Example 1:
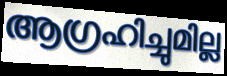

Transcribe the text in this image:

ആഗ്രഹിച്ചുമില്ല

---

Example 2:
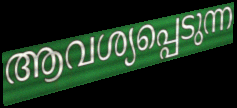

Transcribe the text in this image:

ആവശ്യപ്പെടുന്ന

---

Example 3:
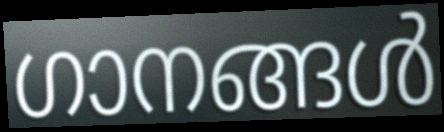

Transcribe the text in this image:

ഗാനങ്ങൾ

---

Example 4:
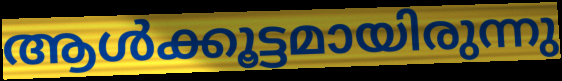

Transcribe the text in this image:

ആൾക്കൂട്ടമായിരുന്നു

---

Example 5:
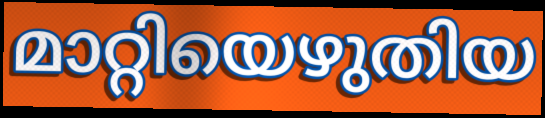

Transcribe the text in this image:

മാറ്റിയെഴുതിയ